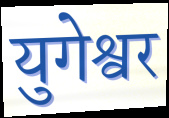
युगेश्वर